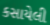
કસાયેલી